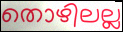
തൊഴിലല്ല